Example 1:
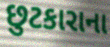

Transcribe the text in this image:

છુટકારાના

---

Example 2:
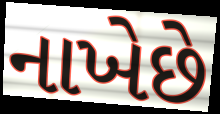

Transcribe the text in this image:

નાખેછે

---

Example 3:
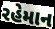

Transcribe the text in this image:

રહેમાન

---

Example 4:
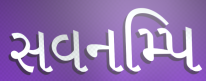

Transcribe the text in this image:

સવનમ્પિ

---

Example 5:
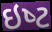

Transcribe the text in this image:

ઇષ્‍ટ